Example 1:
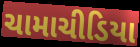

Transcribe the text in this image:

ચામાચીડિયા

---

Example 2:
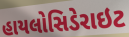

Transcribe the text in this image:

હાયલોસિડેરાઇટ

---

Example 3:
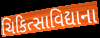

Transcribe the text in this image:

ચિકિત્સાવિદ્યાના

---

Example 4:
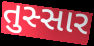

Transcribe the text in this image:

તુસ્સાર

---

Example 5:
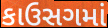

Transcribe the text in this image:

કાઉસગમાં